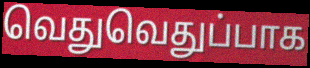
வெதுவெதுப்பாக